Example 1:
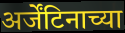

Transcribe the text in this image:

अर्जेंटिनाच्या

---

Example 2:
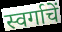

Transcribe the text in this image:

स्वर्गाचें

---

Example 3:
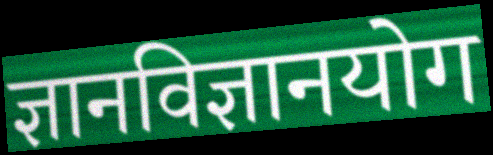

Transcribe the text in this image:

ज्ञानविज्ञानयोग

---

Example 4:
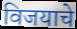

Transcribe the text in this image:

विजयाचे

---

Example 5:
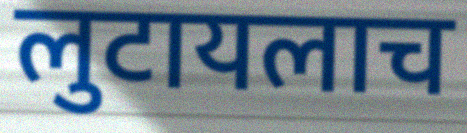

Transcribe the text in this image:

लुटायलाच